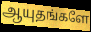
ஆயுதங்களே